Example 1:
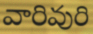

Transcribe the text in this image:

వారివురి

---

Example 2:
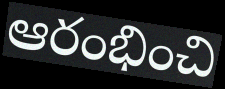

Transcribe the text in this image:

ఆరంభించి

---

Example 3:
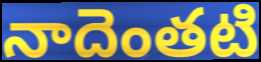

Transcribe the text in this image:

నాదెంతటి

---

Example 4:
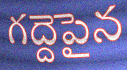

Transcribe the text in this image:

గద్దెపైన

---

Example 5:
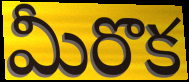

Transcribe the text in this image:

మీరొక